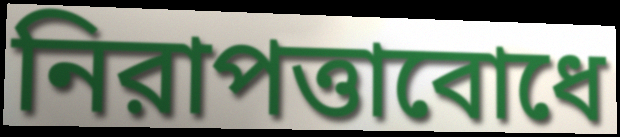
নিরাপত্তাবোধে